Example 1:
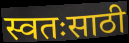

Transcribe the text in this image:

स्वतःसाठी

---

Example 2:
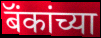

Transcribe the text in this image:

बॅंकांच्या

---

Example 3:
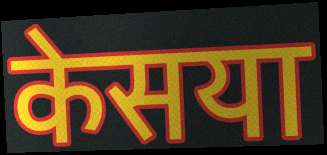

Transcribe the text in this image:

केसया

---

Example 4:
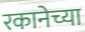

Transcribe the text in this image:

रकानेच्या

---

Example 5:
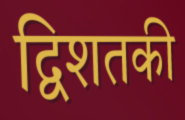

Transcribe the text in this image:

द्विशतकी